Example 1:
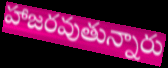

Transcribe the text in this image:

హాజరవుతున్నారు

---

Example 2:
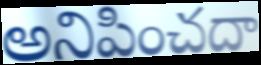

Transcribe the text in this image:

అనిపించదా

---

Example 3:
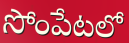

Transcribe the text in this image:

సోంపేటలో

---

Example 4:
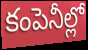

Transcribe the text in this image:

కంపెనీల్లో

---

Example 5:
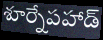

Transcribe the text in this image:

శూర్నేపహాడ్